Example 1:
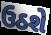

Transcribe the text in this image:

ઉઠશે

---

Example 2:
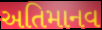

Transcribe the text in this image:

અતિમાનવ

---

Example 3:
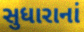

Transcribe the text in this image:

સુધારાનાં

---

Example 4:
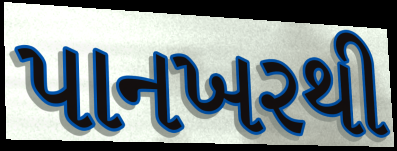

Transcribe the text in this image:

પાનખરથી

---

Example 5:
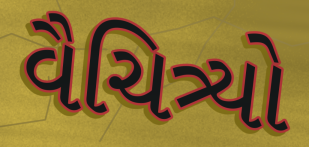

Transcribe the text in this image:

વૈચિત્ર્યો